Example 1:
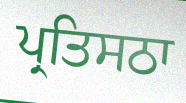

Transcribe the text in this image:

ਪ੍ਰਤਿਸਠਾ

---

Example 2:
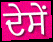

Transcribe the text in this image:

ਦੇਸੇਂ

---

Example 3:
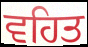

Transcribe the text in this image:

ਵਹਿਤ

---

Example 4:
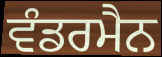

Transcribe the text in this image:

ਵੰਡਰਮੈਨ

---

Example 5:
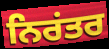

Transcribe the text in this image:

ਨਿਰਂਤਰ